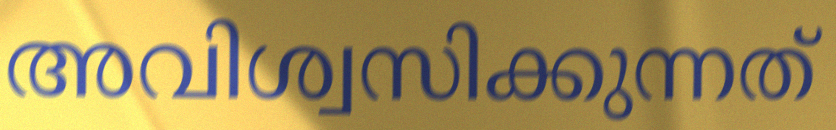
അവിശ്വസിക്കുന്നത്